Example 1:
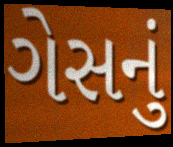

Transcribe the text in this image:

ગેસનું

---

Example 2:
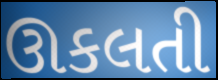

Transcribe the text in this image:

ઊકલતી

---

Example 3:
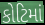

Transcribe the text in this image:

કોટિમાં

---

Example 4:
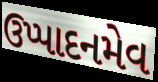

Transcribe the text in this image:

ઉપ્પાદનમેવ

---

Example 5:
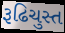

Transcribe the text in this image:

રૂઢિચુસ્ત